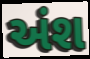
અંશ